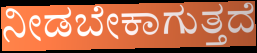
ನೀಡಬೇಕಾಗುತ್ತದೆ